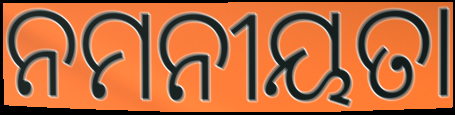
ନମନୀୟତା